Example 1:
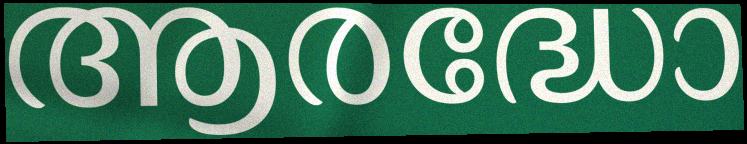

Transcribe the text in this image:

ആരദ്ധോ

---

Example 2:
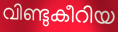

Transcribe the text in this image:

വിണ്ടുകീറിയ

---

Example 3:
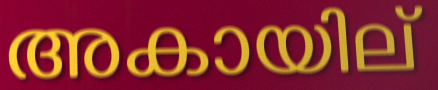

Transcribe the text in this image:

അകായില്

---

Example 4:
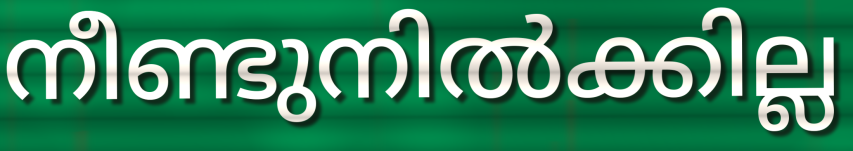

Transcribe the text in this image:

നീണ്ടുനിൽക്കില്ല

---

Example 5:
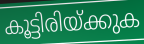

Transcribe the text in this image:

കൂട്ടിരിയ്ക്കുക